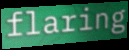
flaring